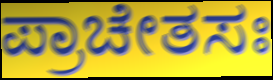
ಪ್ರಾಚೇತಸಃ